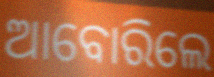
ଆବୋରିଲେ